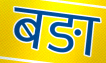
बङा